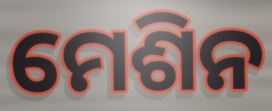
ମେଶିନ